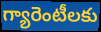
గ్యారెంటీలకు